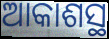
ଆକାଶସ୍ଥ